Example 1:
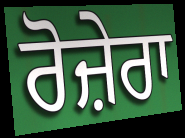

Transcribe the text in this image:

ਰੋਜ਼ੇਰਾ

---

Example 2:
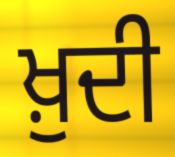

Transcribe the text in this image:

ਖ਼ੁਦੀ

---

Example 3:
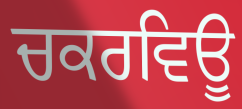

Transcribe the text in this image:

ਚਕਰਵਿਊ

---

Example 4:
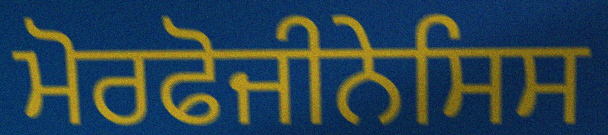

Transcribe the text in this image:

ਮੋਰਫੋਜੀਨੇਸਿਸ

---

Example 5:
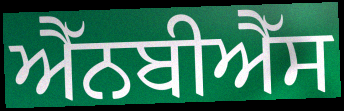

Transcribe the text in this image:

ਐੱਨਬੀਐੱਸ